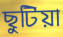
ছুটিয়া